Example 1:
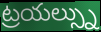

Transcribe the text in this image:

ట్రయల్స్ను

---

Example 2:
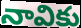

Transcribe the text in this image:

నావికు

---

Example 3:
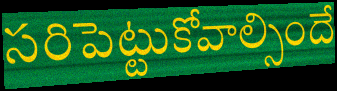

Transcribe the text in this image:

సరిపెట్టుకోవాల్సిందే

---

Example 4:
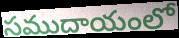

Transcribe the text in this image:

సముదాయంలో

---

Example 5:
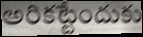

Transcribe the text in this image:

అరికట్టేందుకు